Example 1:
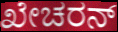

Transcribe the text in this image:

ಖೇಚರನ್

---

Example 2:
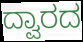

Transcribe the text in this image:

ದ್ವಾರದ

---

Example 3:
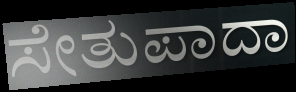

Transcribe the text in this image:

ಸೇತುಪಾದಾ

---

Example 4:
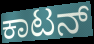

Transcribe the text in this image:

ಕಾಟನ್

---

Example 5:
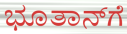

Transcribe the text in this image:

ಭೂತಾನ್‌ಗೆ